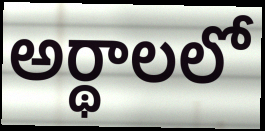
అర్థాలలో